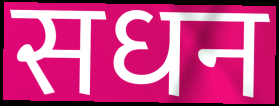
सधन